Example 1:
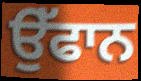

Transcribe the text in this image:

ਉੱਫਾਨ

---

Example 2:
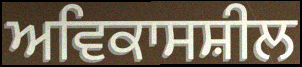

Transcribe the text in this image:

ਅਵਿਕਾਸਸ਼ੀਲ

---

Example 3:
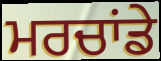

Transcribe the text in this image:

ਮਰਚਾਂਡੇ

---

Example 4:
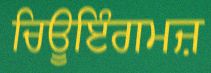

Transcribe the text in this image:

ਚਿਊਇੰਗਮਜ਼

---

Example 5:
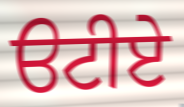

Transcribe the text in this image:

ੳਟੀਏ